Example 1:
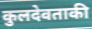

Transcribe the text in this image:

कुलदेवताकी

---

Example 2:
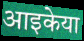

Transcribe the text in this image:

आइकेया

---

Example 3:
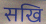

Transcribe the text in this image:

सखि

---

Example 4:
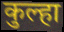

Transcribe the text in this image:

कुल्हा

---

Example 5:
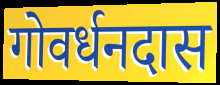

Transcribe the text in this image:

गोवर्धनदास